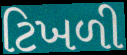
ટિખળી